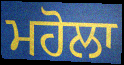
ਮਹੋਲਾ